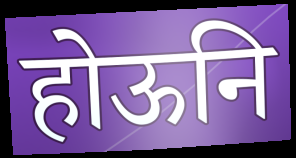
होऊनि